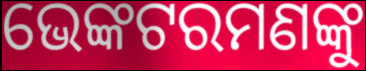
ଭେଙ୍କଟରମଣଙ୍କୁ